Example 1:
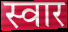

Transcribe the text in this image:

स्‍वार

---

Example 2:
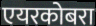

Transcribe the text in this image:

एयरकोबरा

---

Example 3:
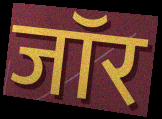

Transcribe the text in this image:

जॉर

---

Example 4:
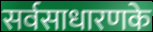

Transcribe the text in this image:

सर्वसाधारणके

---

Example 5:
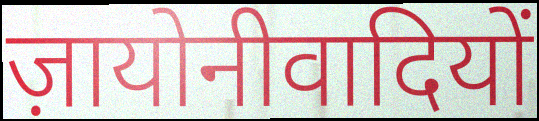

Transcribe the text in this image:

ज़ायोनीवादियों